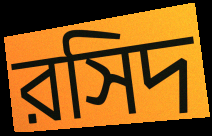
রসিদ